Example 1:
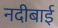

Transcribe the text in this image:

नदीबाई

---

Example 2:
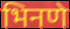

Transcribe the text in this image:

भिनणे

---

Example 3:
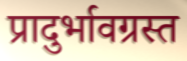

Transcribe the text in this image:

प्रादुर्भावग्रस्त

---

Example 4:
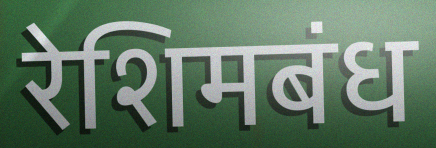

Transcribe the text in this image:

रेशिमबंध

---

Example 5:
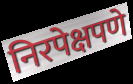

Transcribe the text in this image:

निरपेक्षपणे